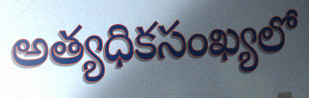
అత్యధికసంఖ్యలో